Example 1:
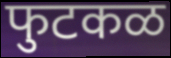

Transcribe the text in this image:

फुटकळ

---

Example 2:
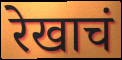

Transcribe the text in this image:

रेखाचं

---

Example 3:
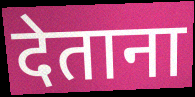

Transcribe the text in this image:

देताना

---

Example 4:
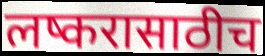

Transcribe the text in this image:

लष्करासाठीच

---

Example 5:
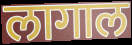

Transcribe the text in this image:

लागाल